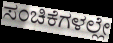
ಸಂಚಿಕೆಗಳಲ್ಲೇ